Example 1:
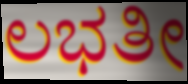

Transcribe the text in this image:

ಲಭತೀ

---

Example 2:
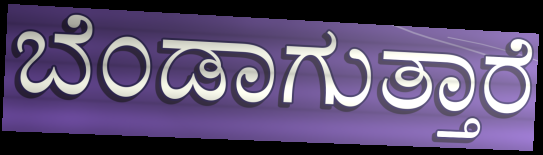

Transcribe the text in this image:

ಬೆಂಡಾಗುತ್ತಾರೆ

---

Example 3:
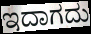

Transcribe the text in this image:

ಇದಾಗದು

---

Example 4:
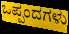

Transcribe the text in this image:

ಒಪ್ಪಂದಗಳು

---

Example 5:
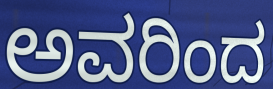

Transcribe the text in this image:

ಅವರಿಂದ